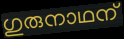
ഗുരുനാഥന്